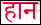
हान